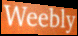
Weebly